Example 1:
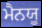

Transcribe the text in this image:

ਮੈਨਯੂ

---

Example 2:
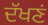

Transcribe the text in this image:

ਦੱਖਣਂ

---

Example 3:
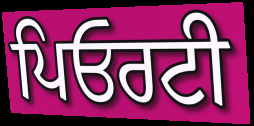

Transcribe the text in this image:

ਪਿਓਰਟੀ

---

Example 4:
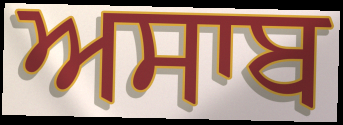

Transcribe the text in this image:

ਅਸਾਬ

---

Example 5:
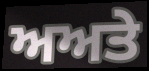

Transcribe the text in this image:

ਅਅਤੇ